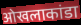
ओखलाकांडा